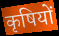
कृषियों